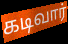
கடிவார்